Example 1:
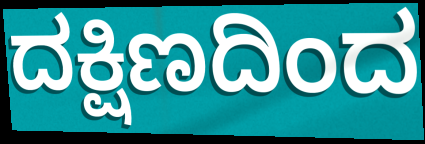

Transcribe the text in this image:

ದಕ್ಷಿಣದಿಂದ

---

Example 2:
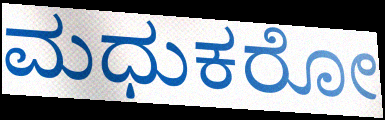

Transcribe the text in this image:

ಮಧುಕರೋ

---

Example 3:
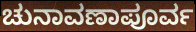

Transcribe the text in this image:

ಚುನಾವಣಾಪೂರ್ವ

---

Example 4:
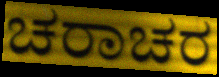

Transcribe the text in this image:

ಚರಾಚರ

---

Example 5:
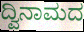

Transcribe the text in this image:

ದ್ವಿನಾಮದ